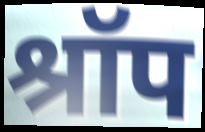
श्रॉप